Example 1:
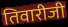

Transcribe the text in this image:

तिवारीजी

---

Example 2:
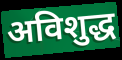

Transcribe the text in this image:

अविशुद्ध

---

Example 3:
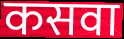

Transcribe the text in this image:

कसवा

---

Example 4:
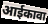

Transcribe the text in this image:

आईकावा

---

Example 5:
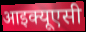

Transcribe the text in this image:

आइक्यूएसी